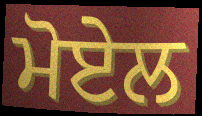
ਮੋਏਲ